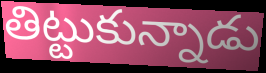
తిట్టుకున్నాడు